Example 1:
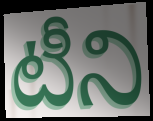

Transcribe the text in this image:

టీని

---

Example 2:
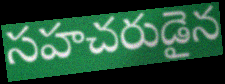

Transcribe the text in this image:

సహచరుడైన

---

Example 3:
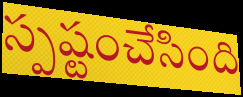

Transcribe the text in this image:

స్పష్టంచేసింది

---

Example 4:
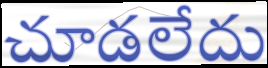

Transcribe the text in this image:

చూడలేదు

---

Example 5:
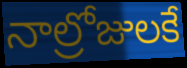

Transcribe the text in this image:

నాల్రోజులకే